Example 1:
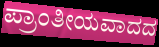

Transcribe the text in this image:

ಪ್ರಾಂತೀಯವಾದದ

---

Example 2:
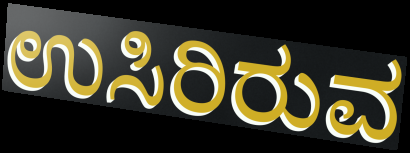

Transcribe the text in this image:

ಉಸಿರಿರುವ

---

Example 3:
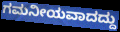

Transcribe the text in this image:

ಗಮನೀಯವಾದದ್ದು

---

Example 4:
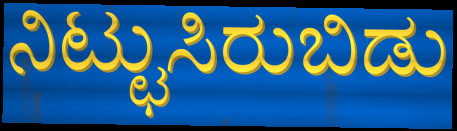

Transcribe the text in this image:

ನಿಟ್ಟುಸಿರುಬಿಡು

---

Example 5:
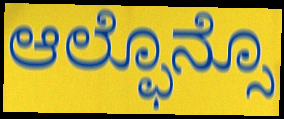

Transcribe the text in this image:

ಆಲ್ಫೊನ್ಸೊ